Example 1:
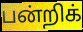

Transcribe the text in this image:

பன்றிக்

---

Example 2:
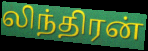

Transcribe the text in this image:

லிந்திரன்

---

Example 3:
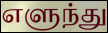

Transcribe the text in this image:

எளுந்து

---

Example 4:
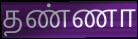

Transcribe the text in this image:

தண்ணா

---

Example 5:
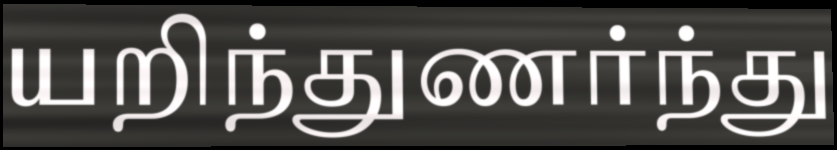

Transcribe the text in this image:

யறிந்துணர்ந்து